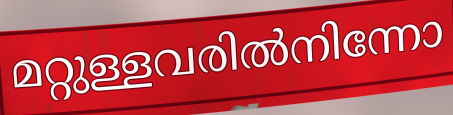
മറ്റുള്ളവരിൽനിന്നോ